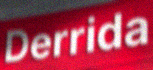
Derrida